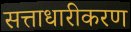
सत्ताधारीकरण